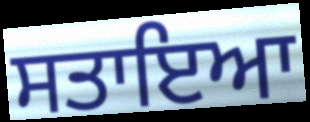
ਸਤਾਇਆ